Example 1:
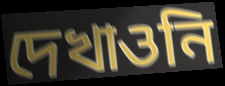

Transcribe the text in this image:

দেখাওনি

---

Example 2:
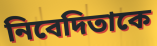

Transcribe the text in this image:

নিবেদিতাকে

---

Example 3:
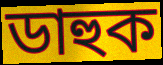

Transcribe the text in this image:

ডাহুক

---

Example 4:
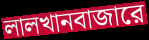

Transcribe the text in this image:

লালখানবাজারে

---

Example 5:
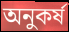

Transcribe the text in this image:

অনুকর্ষ